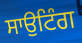
ਸਾਉਟਿੰਗ